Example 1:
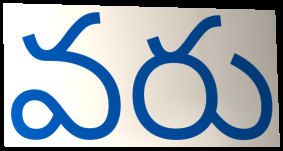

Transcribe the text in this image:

వరు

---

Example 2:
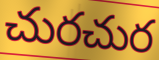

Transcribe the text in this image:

చురచుర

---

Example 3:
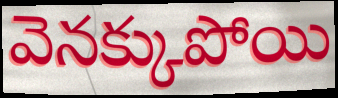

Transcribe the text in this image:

వెనక్కుపోయి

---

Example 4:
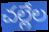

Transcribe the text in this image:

చల్లేల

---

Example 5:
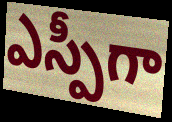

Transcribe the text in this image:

ఎస్పీగా